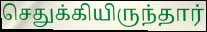
செதுக்கியிருந்தார்